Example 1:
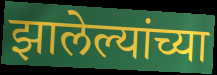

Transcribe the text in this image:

झालेल्यांच्या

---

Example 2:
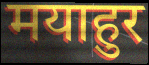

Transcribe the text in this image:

मयाहुर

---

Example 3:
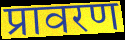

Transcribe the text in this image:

प्रावरण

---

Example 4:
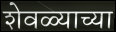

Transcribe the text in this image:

शेवळ्याच्या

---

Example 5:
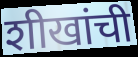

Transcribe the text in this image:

शीखांची